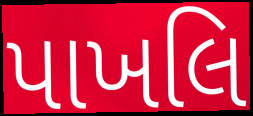
પાખલિ